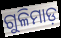
ଗୁଳିମାଡ଼